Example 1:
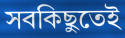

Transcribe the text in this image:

সবকিছুতেই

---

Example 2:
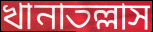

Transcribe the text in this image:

খানাতল্লাস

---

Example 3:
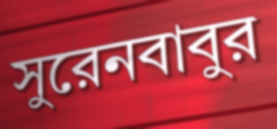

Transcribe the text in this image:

সুরেনবাবুর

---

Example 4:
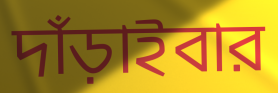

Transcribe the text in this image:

দাঁড়াইবার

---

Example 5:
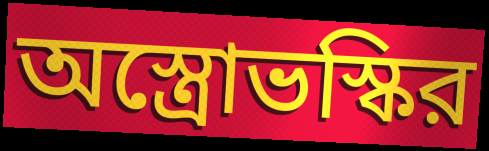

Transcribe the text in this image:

অস্ত্রোভস্কির